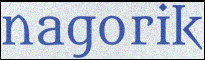
nagorik